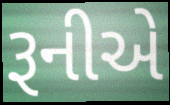
રૂનીએ